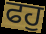
ਫਹੁ